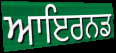
ਆਇਰਨਡ